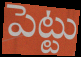
పెట్టు